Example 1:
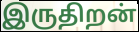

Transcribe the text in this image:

இருதிறன்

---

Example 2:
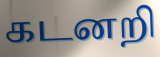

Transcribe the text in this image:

கடனறி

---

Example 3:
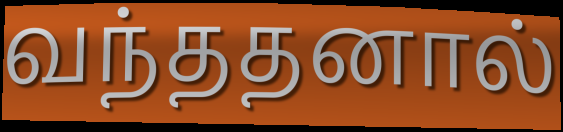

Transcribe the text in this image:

வந்ததனால்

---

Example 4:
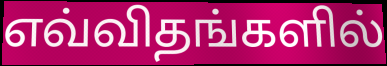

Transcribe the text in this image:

எவ்விதங்களில்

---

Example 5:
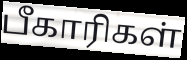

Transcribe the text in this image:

பீகாரிகள்